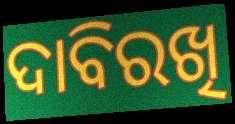
ଦାବିରଖି